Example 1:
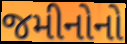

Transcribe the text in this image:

જમીનોનો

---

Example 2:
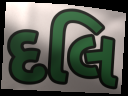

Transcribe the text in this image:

દલિ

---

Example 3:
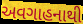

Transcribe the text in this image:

અવગાહનાથી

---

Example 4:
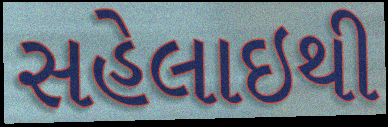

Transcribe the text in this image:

સહેલાઇથી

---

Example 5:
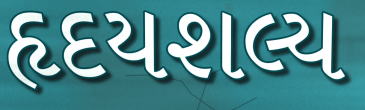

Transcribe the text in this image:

હૃદયશલ્ય